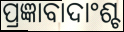
ପ୍ରଜ୍ଞାବାଦାଂଶ୍ଚ